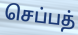
செப்பத்